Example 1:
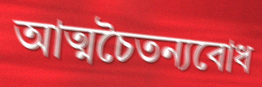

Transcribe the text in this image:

আত্মচৈতন্যবোধ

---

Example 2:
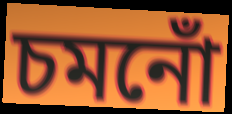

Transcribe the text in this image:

চমনোঁ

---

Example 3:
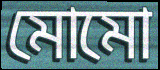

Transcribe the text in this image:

মোমো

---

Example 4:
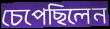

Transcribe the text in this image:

চেপেছিলেন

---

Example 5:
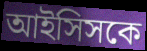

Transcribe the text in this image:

আইসিসকে